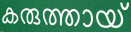
കരുത്തായ്